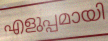
എളുപ്പമായി